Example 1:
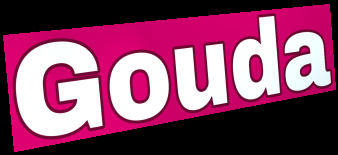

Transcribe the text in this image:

Gouda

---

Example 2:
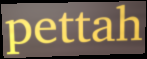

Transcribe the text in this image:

pettah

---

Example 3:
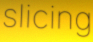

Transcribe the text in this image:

slicing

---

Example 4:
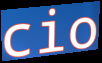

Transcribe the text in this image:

cio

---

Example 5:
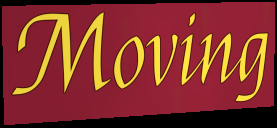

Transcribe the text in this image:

Moving